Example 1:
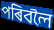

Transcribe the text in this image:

পৰিবলৈ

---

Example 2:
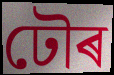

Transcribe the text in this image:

ঢৌৰ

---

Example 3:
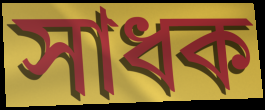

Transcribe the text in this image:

সাধক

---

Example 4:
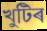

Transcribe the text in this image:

খুটিৰ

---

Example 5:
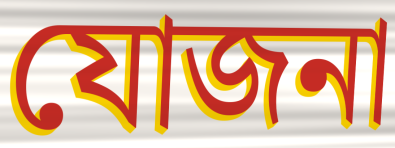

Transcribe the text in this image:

যোজনা